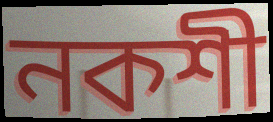
নকশী